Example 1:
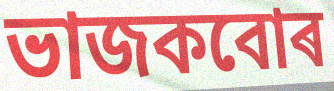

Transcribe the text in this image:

ভাজকবোৰ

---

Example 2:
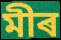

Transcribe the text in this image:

মীৰ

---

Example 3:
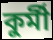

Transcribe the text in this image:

কুৰ্মী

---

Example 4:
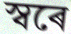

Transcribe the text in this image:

স্বৰে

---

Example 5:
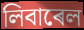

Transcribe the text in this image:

লিবাৰেল